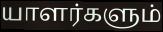
யாளர்களும்